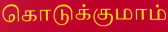
கொடுக்குமாம்